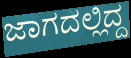
ಜಾಗದಲ್ಲಿದ್ದ